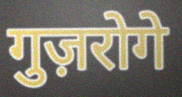
गुज़रोगे